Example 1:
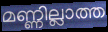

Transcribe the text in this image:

മണ്ണില്ലാത്ത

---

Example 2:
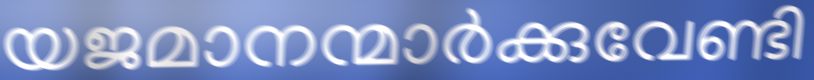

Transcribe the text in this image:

യജമാനന്മാർക്കുവേണ്ടി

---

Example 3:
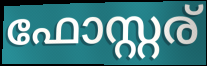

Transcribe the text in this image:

ഫോസ്റ്റര്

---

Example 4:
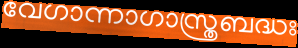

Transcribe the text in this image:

വേഗാന്നാഗാസ്ത്രബദ്ധഃ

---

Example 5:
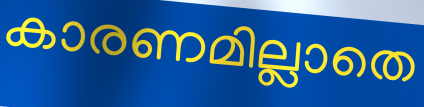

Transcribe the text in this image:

കാരണമില്ലാതെ